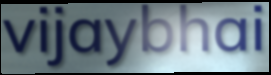
vijaybhai